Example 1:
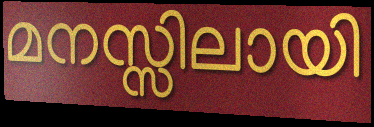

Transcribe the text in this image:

മനസ്സിലായി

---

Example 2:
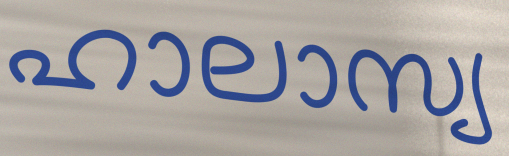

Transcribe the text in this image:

ഹാലാസ്യ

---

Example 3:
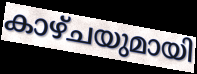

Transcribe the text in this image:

കാഴ്ചയുമായി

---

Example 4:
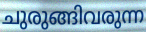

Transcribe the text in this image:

ചുരുങ്ങിവരുന്ന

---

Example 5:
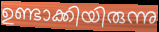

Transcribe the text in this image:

ഉണ്ടാക്കിയിരുന്നു